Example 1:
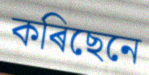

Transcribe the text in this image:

কৰিছেনে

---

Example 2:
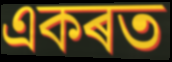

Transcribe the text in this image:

একৰত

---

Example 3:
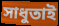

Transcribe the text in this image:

সাধুতাই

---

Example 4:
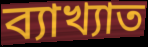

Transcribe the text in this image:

ব্যাখ্যাত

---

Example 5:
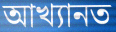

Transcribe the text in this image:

আখ্যানত